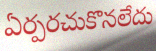
ఏర్పరచుకొనలేదు